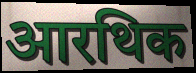
आरथिक